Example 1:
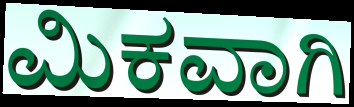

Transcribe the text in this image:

ಮಿಕವಾಗಿ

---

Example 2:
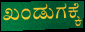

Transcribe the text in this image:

ಖಂಡುಗಕ್ಕೆ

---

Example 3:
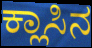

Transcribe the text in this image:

ಕ್ಲಾಸಿನ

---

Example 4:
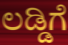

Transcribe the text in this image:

ಲಡ್ಡಿಗೆ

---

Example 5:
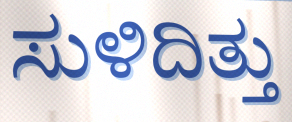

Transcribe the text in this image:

ಸುಳಿದಿತ್ತು